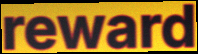
reward